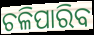
ଚଳିପାରିବ